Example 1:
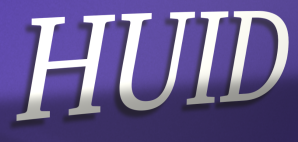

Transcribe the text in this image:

HUID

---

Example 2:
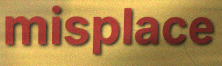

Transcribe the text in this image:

misplace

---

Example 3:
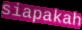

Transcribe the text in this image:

siapakah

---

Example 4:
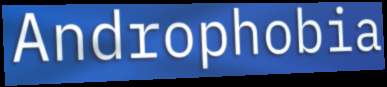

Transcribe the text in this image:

Androphobia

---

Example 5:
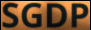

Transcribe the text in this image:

SGDP